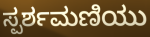
ಸ್ಪರ್ಶಮಣಿಯು